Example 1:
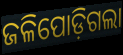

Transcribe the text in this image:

ଜଳିପୋଡ଼ିଗଲା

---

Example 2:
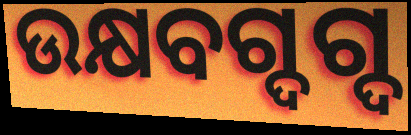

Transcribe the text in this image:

ଉକ୍ଷବଗ୍ଦଗ୍ଦ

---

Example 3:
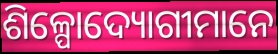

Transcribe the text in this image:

ଶିଳ୍ପୋଦ୍ୟୋଗୀମାନେ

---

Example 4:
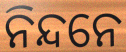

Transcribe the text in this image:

ନିନ୍ଦନେ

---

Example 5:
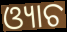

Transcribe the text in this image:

ଓ୍ୟାଚ